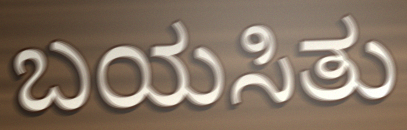
ಬಯಸಿತು